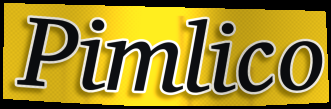
Pimlico